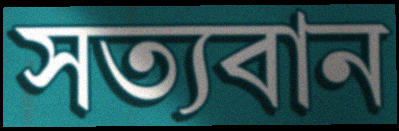
সত্যবান